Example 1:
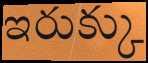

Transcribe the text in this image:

ఇరుక్కు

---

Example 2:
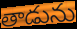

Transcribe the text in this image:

తాడును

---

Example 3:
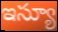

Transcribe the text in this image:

ఇస్యూ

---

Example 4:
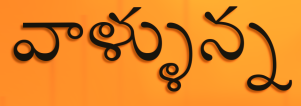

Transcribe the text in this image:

వాళ్ళున్న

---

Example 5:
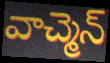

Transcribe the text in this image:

వాచ్మెన్